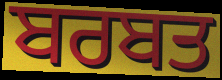
ਬਰਬਤ